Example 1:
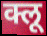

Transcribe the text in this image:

क्लू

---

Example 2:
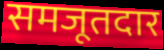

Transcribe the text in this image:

समजूतदार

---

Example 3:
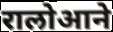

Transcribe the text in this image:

रालोआने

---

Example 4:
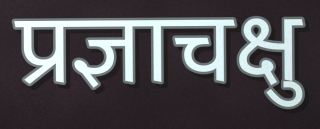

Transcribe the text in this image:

प्रज्ञाचक्षु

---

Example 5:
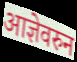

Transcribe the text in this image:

आज्ञेवरुन